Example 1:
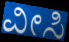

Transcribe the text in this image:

ವೀಸಿ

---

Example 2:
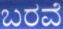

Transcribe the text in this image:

ಬರವೆ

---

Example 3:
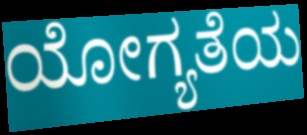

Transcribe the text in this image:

ಯೋಗ್ಯತೆಯ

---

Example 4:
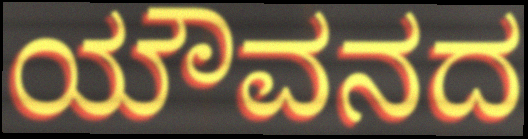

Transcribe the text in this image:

ಯೌವನದ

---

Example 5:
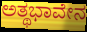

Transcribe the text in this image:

ಅತ್ಥಭಾವೇನ